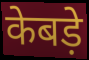
केबड़े